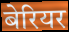
बेरियर